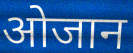
ओजान